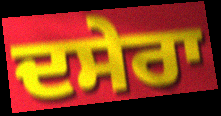
ਦਸੇਰਾ